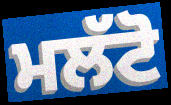
ਮਲੱਟੋ